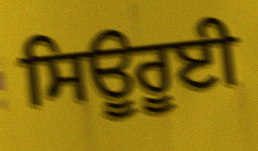
ਸਿਊਰੂਈ